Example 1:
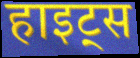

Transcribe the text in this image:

हाइट्स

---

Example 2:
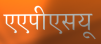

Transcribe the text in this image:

एएपीएसयू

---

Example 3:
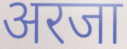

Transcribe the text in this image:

अरजा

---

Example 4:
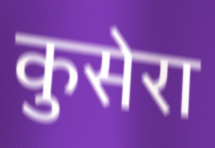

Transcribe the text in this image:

कुसेरा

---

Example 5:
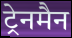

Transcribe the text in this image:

ट्रेनमैन